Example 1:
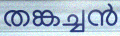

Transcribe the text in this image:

തങ്കച്ചൻ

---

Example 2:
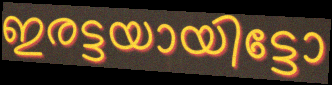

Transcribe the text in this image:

ഇരട്ടയായിട്ടോ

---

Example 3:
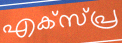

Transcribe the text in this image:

എക്സ്പ്ര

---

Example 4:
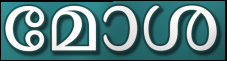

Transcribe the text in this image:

മോശ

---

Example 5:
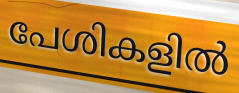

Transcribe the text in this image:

പേശികളിൽ